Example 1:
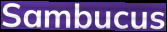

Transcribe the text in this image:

Sambucus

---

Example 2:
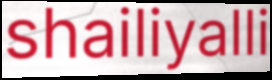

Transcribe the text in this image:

shailiyalli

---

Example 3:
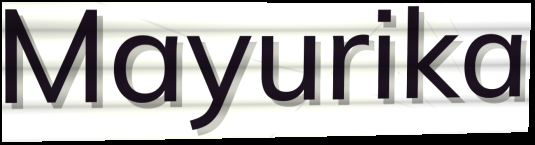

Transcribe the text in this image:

Mayurika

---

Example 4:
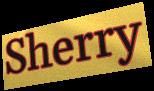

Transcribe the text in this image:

Sherry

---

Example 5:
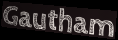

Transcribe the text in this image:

Gautham